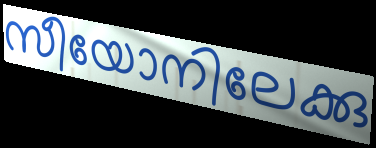
സീയോനിലേക്കു